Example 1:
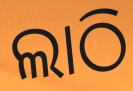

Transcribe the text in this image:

ଲାଠି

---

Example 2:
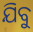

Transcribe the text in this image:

ଯିବୁ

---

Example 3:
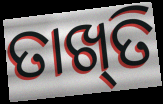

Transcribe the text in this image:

ତାଖ୍‍ତି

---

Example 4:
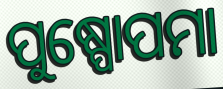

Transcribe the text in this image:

ପୁଷ୍ପୋପମା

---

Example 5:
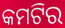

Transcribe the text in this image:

କମଟିର